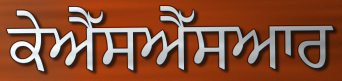
ਕੇਐੱਸਐੱਸਆਰ